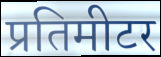
प्रतिमीटर